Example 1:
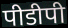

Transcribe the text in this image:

पीडीपी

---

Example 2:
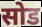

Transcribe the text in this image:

सोड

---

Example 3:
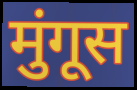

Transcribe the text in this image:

मुंगूस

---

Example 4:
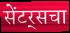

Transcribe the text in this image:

सेंटर्सचा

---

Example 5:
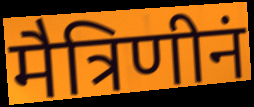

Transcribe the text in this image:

मैत्रिणीनं